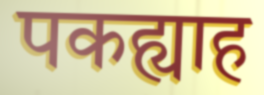
पकह्याह